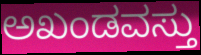
ಅಖಂಡವಸ್ತು